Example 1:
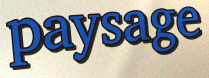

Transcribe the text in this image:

paysage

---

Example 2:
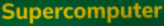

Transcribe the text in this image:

Supercomputer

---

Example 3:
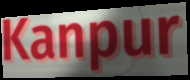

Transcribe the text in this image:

Kanpur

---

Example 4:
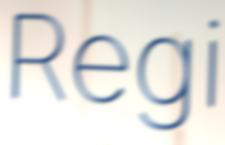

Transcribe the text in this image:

Regi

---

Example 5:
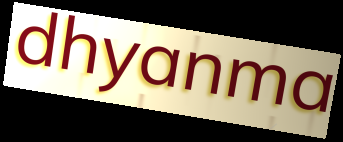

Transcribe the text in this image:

dhyanma